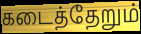
கடைத்தேறும்